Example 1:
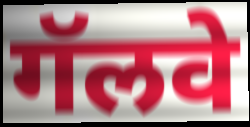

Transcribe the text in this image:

गॅलवे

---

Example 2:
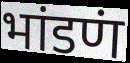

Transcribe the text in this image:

भांडणं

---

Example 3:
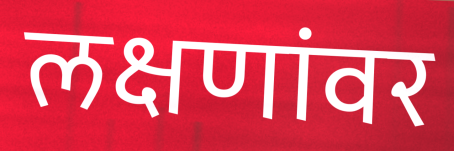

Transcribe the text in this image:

लक्षणांवर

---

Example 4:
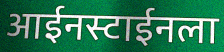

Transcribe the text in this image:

आईनस्टाईनला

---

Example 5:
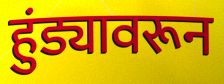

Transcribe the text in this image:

हुंड्यावरून